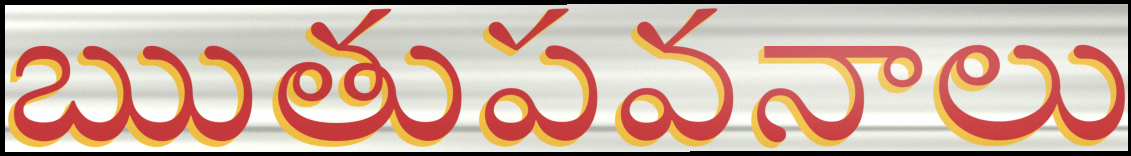
ఋతుపవనాలు